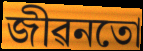
জীৱনতো